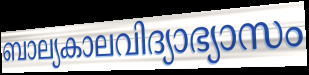
ബാല്യകാലവിദ്യാഭ്യാസം